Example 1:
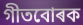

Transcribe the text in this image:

গীতবোৰক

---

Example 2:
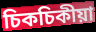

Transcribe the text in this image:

চিকচিকীয়া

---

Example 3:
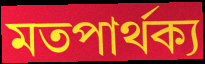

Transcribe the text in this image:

মতপাৰ্থক্য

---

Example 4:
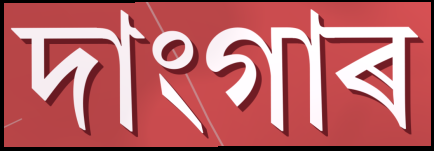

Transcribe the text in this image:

দাংগাৰ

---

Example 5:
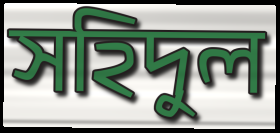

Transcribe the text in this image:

সহিদুল